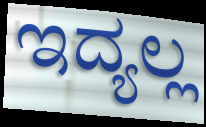
ಇದ್ಯಲ್ಲ